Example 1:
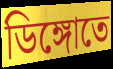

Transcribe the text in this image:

ডিঙ্গোতে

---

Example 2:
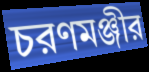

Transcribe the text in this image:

চরণমঞ্জীর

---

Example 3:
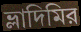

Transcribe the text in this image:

ভ্লাদিমির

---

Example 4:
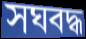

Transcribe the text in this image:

সঘবদ্ধ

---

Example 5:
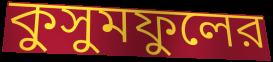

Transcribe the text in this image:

কুসুমফুলের